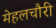
मेहलचौरी